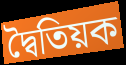
দ্বৈতিয়ক